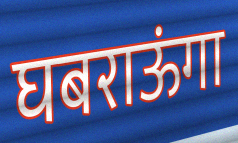
घबराऊंगा